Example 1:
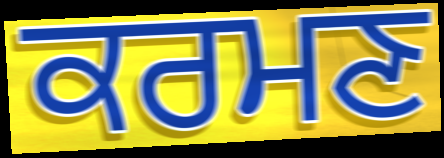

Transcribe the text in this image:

ਕਰਮਣ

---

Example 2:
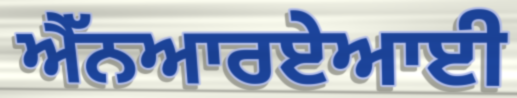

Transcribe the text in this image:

ਐੱਨਆਰਏਆਈ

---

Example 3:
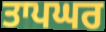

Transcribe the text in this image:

ਤਾਪਘਰ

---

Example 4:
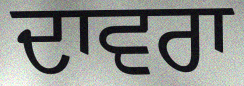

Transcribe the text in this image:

ਦਾਵਰਾ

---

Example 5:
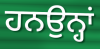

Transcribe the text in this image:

ਹਨਉਨ੍ਹਾਂ